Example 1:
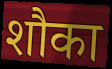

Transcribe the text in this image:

शौका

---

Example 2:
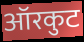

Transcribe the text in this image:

ऑरकुट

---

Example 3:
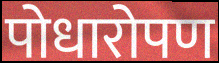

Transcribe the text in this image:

पोधारोपण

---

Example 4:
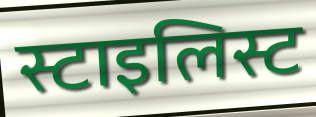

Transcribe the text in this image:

स्टाइलिस्ट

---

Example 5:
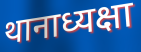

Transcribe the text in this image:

थानाध्यक्षा